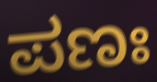
ಪಣಃ